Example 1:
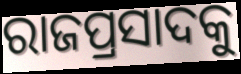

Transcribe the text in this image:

ରାଜପ୍ରସାଦକୁ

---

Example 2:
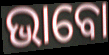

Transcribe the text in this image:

ଭାବୋ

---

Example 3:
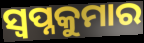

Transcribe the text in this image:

ସ୍ଵପ୍ନକୁମାର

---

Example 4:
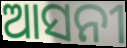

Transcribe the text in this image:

ଆସନୀ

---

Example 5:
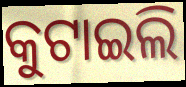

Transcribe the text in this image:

କୁଟାଇଲି